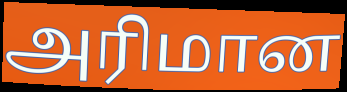
அரிமான